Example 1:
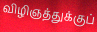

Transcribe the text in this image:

விழிஞத்துக்குப்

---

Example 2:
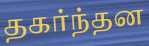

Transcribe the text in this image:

தகர்ந்தன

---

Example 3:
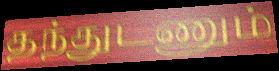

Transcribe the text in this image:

தந்துடணும்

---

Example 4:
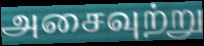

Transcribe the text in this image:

அசைவுற்று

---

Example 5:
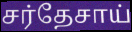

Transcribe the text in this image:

சர்தேசாய்